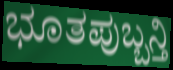
ಭೂತಪುಬ್ಬನ್ತಿ